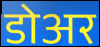
डोअर